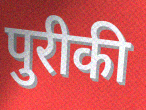
पुरीकी